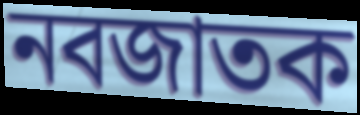
নবজাতক